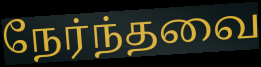
நேர்ந்தவை